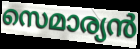
സെമാര്യൻ